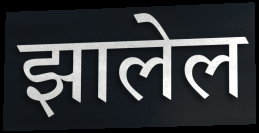
झालेल